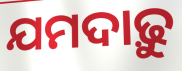
ଯମଦାଢ଼ୁ